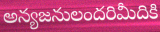
అన్యజనులందరిమీదికి